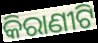
କିରାଣୀଟି